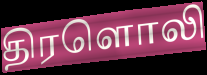
திரளொலி